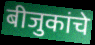
बीजुकांचे